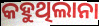
କହୁଥିଲାନା